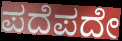
ಪದೆಪದೇ